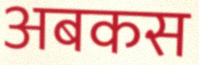
अबकस